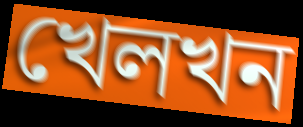
খেলখন